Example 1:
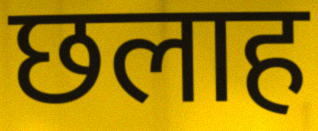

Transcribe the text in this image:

छलाह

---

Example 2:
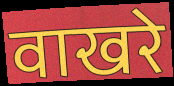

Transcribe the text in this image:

वाखरे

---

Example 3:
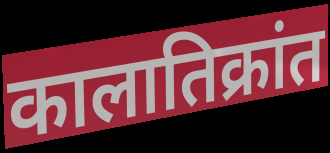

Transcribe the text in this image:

कालातिक्रांत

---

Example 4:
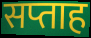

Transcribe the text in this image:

सप्‍ताह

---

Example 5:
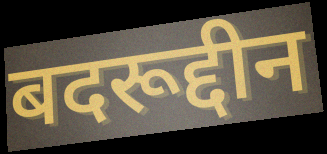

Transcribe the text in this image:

बदरूद्दीन